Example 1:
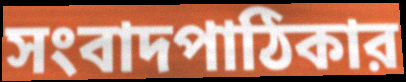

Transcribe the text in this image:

সংবাদপাঠিকার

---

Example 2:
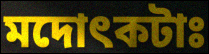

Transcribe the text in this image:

মদোৎকটাঃ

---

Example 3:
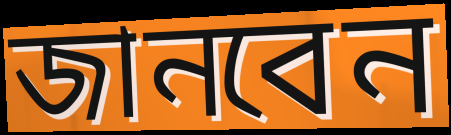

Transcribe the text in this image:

জানবেন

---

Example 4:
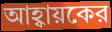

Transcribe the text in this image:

আহ্বায়কের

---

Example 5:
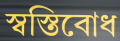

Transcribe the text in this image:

স্বস্তিবোধ